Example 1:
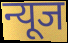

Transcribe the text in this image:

न्‍यूज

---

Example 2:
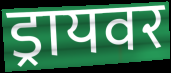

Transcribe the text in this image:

ड्रायवर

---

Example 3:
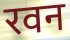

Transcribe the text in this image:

रवन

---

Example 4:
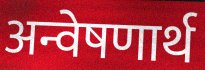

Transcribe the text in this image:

अन्वेषणार्थ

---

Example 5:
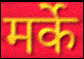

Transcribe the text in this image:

मर्के